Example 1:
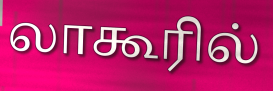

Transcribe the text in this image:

லாகூரில்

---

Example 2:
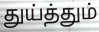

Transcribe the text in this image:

துய்த்தும்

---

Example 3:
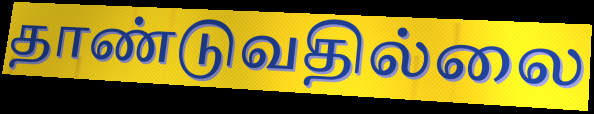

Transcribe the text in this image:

தாண்டுவதில்லை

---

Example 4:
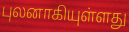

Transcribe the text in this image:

புலனாகியுள்ளது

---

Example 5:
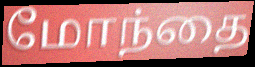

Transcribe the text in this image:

மோந்தை